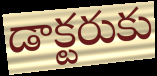
డాక్టరుకు